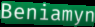
Beniamyn